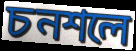
চনশলে